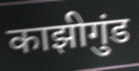
काझीगुंड